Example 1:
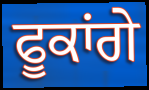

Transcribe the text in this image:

ਫੂਕਾਂਗੇ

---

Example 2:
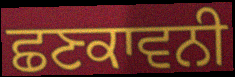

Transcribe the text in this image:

ਛਣਕਾਵਨੀ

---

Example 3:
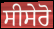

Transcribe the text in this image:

ਸੀਸੇਰੋ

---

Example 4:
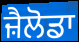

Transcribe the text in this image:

ਜ਼ੈਲੋਡਾ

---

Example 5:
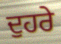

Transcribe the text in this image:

ਦੁਹਰੇ